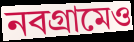
নবগ্রামেও